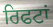
ਰਿਫਟਾਂ